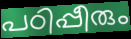
പഠിപ്പീരും